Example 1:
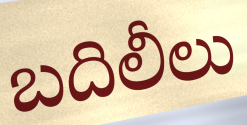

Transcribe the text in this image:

బదిలీలు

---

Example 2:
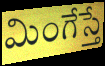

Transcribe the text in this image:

మింగేస్తే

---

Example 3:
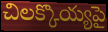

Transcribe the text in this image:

చిలక్కొయ్యపై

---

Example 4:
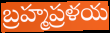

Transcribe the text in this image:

బ్రహ్మప్రళయ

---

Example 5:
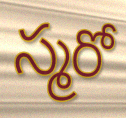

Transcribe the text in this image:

స్మరో